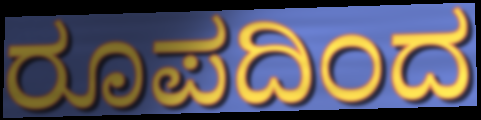
ರೂಪದಿಂದ